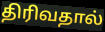
திரிவதால்